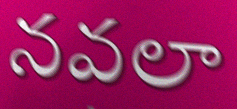
నవలా